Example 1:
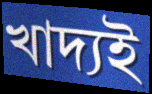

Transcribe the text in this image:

খাদ্যই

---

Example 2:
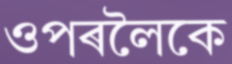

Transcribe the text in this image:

ওপৰলৈকে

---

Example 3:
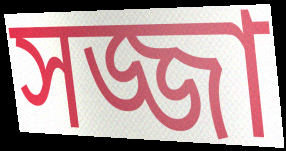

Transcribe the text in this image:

সজ্জা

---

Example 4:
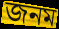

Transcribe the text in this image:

জনম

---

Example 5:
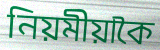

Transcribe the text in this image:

নিয়মীয়াকৈ